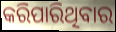
କରିପାରିଥିବାର